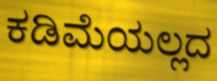
ಕಡಿಮೆಯಲ್ಲದ